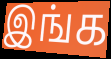
இங்க